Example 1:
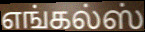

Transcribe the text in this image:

எங்கல்ஸ்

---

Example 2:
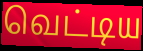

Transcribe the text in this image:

வெட்டிய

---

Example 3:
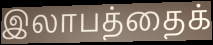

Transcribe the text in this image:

இலாபத்தைக்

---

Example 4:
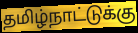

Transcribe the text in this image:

தமிழ்நாட்டுக்கு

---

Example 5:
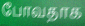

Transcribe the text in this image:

போவதாக